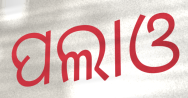
ପଲାଓ